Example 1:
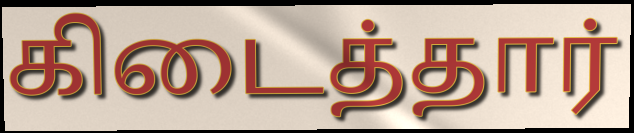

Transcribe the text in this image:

கிடைத்தார்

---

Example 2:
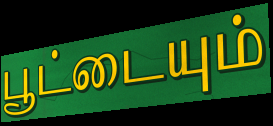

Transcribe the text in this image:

பூட்டையும்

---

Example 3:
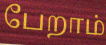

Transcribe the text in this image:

பேறாம்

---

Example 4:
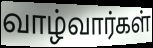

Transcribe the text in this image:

வாழ்வார்கள்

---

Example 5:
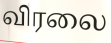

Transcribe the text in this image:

விரலை